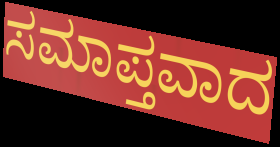
ಸಮಾಪ್ತವಾದ